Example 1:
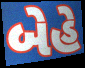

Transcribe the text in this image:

બેહે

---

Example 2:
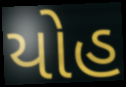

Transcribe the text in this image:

યોહ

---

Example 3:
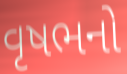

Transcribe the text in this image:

વૃષભનો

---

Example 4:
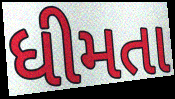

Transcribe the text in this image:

ધીમતા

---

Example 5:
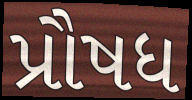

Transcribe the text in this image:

પ્રૌષધ